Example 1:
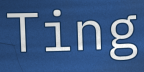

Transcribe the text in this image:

Ting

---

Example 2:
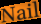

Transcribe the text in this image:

Nail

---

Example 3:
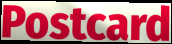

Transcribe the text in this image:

Postcard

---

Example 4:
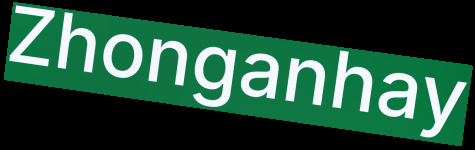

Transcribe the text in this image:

Zhonganhay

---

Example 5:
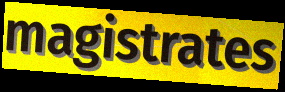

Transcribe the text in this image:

magistrates